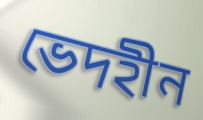
ভেদহীন